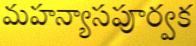
మహన్యాసపూర్వక